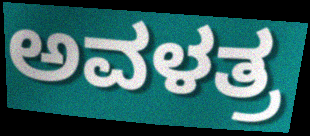
ಅವಳತ್ರ